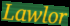
Lawlor